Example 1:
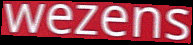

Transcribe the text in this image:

wezens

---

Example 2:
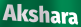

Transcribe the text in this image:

Akshara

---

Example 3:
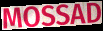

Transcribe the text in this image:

MOSSAD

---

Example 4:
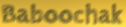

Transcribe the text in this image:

Baboochak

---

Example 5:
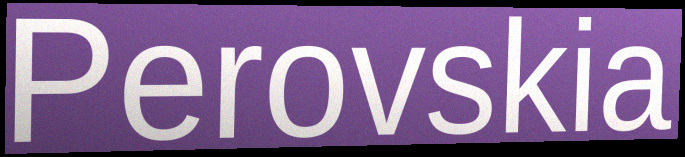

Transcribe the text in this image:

Perovskia